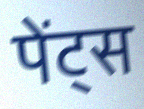
पेंट्स